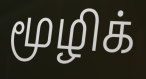
மூழிக்